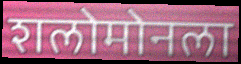
शलोमोनला